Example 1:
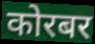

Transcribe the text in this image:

कोरबर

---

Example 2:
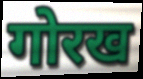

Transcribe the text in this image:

गोरख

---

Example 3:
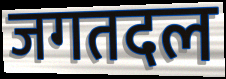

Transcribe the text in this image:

जगतदल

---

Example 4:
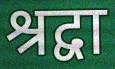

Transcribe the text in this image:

श्रद्वा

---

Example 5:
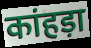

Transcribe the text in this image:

कांहड़ा